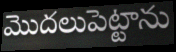
మొదలుపెట్టాను